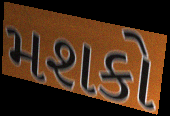
મશકો